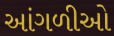
આંગળીઓ